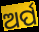
ଅର୍ପ